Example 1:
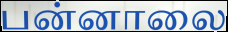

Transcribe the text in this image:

பன்னாலை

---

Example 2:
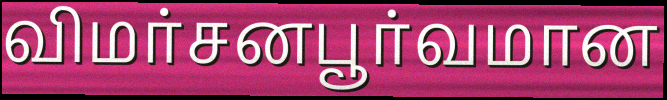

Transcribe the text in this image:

விமர்சனபூர்வமான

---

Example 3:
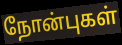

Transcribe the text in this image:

நோன்புகள்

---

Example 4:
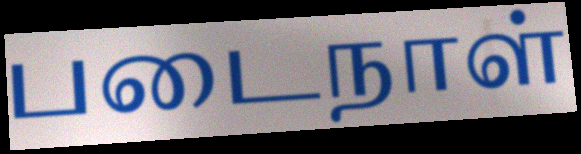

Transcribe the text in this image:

படைநாள்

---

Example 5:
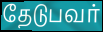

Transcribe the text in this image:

தேடுபவர்